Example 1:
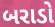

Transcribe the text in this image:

બરાડો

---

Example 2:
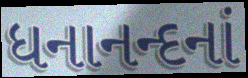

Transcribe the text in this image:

ધનાનન્દનાં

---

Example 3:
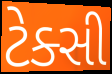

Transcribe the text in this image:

ટેક્સી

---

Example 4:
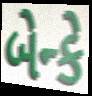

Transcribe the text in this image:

બેન્કે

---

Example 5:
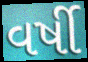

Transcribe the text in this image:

વર્ષી